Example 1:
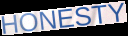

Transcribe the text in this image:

HONESTY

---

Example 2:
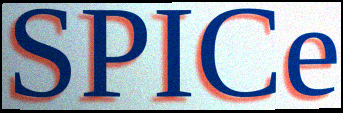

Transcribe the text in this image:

SPICe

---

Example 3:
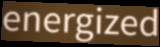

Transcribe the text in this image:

energized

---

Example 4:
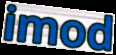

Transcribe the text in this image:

imod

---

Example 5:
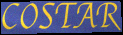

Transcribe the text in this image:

COSTAR